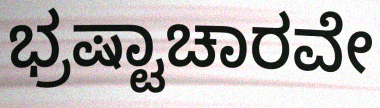
ಭ್ರಷ್ಟಾಚಾರವೇ